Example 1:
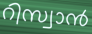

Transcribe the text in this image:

റിസ്വാൻ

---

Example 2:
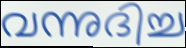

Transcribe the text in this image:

വന്നുദിച്ച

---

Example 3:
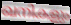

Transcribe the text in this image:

ഖനികളും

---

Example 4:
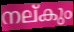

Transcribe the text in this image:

നല്കും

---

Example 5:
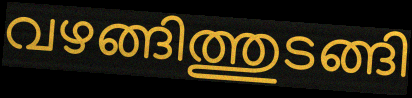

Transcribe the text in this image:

വഴങ്ങിത്തുടങ്ങി